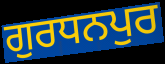
ਗੁਰਧਨਪੁਰ